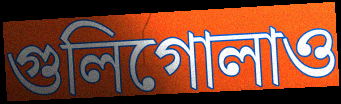
গুলিগোলাও